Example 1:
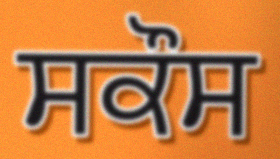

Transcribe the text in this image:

ਸਕੌਸ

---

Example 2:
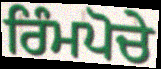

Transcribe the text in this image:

ਰਿੰਮਪੋਚੇ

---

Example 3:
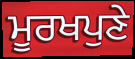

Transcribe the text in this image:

ਮੂਰਖਪੁਣੇ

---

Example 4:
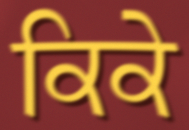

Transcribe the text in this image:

ਕਿਕੇ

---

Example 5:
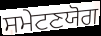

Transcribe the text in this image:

ਸਮੇਟਣਯੋਗ